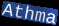
Athma